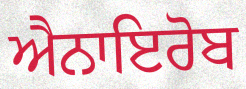
ਐਨਾਇਰੋਬ